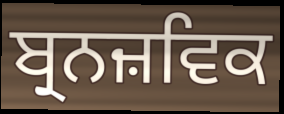
ਬ੍ਰਨਜ਼ਵਿਕ